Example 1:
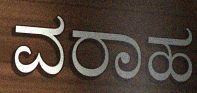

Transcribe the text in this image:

ವರಾಹ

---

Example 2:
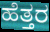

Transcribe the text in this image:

ಹೆತ್ತರ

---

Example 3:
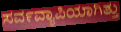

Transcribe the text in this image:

ಸರ್ವವ್ಯಾಪಿಯಾಗಿತ್ತು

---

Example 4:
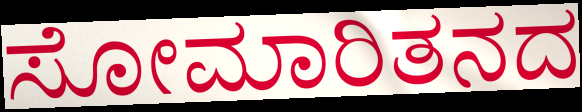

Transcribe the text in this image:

ಸೋಮಾರಿತನದ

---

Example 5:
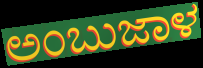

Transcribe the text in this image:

ಅಂಬುಜಾಳ